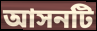
আসনটি